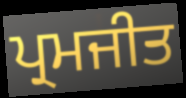
ਪ੍ਰਮਜੀਤ